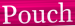
Pouch